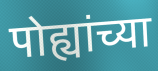
पोह्यांच्या